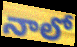
నాలో